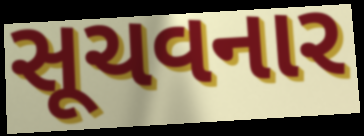
સૂચવનાર